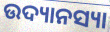
ଉଦ୍ୟାନସ୍ୟା